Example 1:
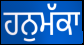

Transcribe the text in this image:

ਹਨੁਮੱਕਾ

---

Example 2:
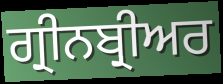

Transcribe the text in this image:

ਗ੍ਰੀਨਬ੍ਰੀਅਰ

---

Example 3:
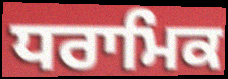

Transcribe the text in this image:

ਧਰਾਮਿਕ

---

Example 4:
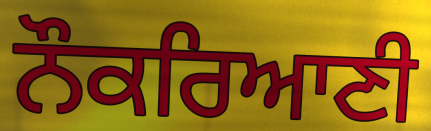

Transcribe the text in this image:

ਨੌਕਰਿਆਣੀ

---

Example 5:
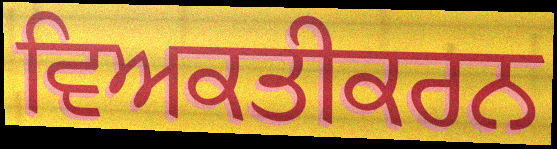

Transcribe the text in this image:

ਵਿਅਕਤੀਕਰਨ